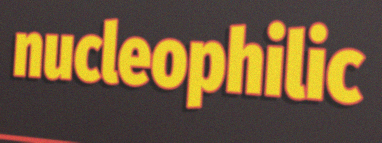
nucleophilic